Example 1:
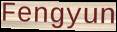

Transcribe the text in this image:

Fengyun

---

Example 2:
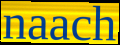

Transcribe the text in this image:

naach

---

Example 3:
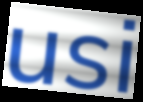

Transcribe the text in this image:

usi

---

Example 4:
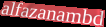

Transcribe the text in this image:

alfazanambd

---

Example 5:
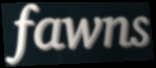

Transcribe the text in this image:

fawns